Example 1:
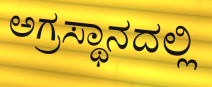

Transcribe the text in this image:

ಅಗ್ರಸ್ಥಾನದಲ್ಲಿ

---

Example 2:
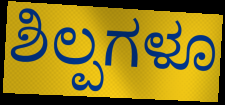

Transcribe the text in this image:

ಶಿಲ್ಪಗಳೂ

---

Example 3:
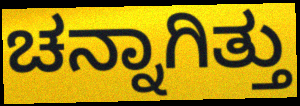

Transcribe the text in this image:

ಚನ್ನಾಗಿತ್ತು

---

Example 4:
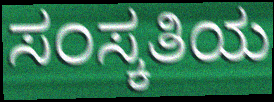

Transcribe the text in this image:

ಸಂಸ್ಕತಿಯ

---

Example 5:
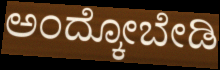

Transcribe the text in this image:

ಅಂದ್ಕೋಬೇಡಿ